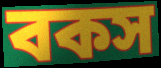
বকস